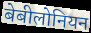
बेबीलोनियन